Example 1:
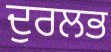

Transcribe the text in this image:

ਦੁਰਲਭ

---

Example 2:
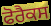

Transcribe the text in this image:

ਫੋਰੈਕਸ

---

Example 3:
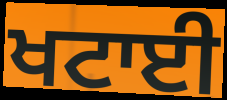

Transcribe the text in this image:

ਖਟਾਈ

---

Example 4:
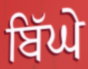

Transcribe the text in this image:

ਬਿੱਘੇ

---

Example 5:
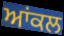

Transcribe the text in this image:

ਆਂਕਲ